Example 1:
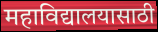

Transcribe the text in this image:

महाविद्यालयासाठी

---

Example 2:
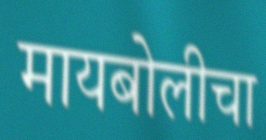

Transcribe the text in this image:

मायबोलीचा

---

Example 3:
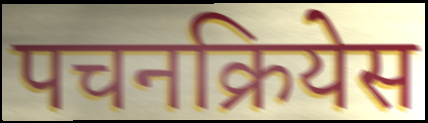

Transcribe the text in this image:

पचनक्रियेस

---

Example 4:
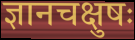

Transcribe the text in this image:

ज्ञानचक्षुषः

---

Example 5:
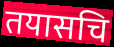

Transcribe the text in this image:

तयासचि